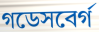
গডেসবের্গ